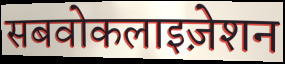
सबवोकलाइज़ेशन